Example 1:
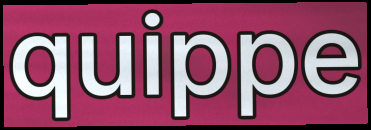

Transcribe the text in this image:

quippe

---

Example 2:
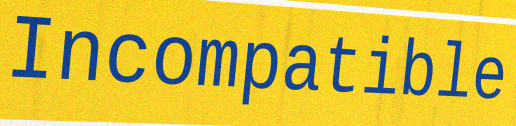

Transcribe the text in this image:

Incompatible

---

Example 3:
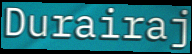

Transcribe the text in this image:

Durairaj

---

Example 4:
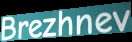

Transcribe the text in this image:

Brezhnev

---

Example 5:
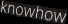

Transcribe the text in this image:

knowhow